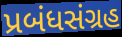
પ્રબંધસંગ્રહ